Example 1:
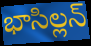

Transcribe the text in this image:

భాసిల్లన్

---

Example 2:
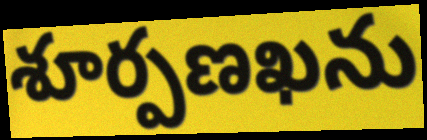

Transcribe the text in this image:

శూర్పణఖను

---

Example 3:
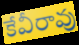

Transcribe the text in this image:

కేవీరావు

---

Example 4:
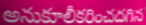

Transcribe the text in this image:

అనుకూలీకరించదగిన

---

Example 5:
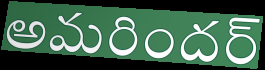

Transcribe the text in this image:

అమరిందర్